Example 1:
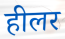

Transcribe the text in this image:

हीलर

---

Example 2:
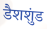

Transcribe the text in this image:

डैशशुंड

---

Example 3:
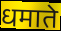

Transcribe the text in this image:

धमाते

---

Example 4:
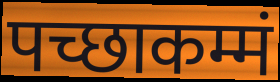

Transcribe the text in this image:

पच्छाकम्मं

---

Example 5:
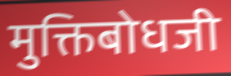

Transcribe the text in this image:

मुक्तिबोधजी